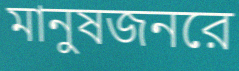
মানুষজনরে